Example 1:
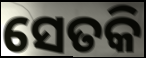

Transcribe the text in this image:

ସେତକି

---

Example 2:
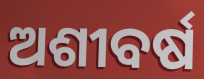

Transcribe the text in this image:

ଅଶୀବର୍ଷ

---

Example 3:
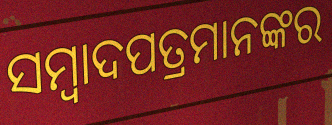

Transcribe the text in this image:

ସମ୍ୱାଦପତ୍ରମାନଙ୍କର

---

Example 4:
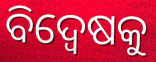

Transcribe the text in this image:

ବିଦ୍ବେଷକୁ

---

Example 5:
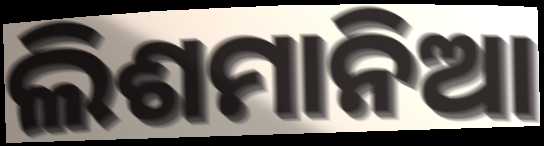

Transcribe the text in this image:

ଲିଶମାନିଆ